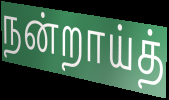
நன்றாய்த்